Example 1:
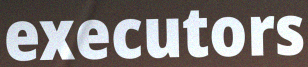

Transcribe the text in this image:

executors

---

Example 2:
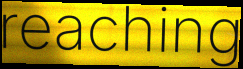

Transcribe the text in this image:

reaching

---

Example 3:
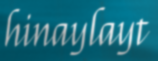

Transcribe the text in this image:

hinaylayt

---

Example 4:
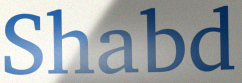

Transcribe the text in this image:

Shabd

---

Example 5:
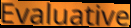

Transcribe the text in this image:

Evaluative